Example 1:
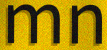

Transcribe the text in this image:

mn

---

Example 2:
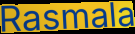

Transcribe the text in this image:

Rasmala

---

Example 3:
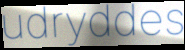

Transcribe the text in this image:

udryddes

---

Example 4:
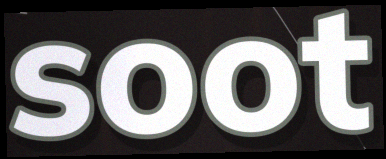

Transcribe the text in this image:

soot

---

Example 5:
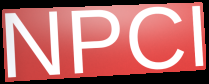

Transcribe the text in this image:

NPCI